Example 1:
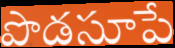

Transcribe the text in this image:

పొడసూపే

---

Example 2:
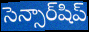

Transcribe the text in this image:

సెన్సార్‌షిప్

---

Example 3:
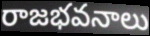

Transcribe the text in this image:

రాజభవనాలు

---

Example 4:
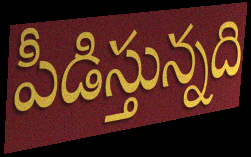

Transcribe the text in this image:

పీడిస్తున్నది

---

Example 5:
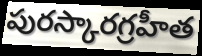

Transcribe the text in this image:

పురస్కారగ్రహీత